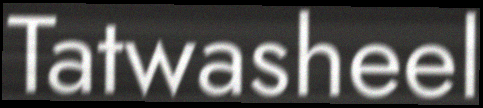
Tatwasheel